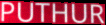
PUTHUR